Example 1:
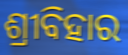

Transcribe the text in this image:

ଶ୍ରୀବିହାର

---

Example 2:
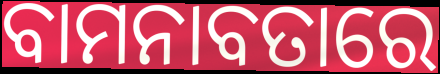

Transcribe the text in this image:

ବାମନାବତାରେ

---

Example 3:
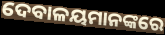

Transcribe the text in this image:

ଦେବାଳୟମାନଙ୍କରେ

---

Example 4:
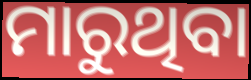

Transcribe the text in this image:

ମାରୁଥିବା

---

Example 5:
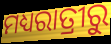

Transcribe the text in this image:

ମଧ୍ୟରାତ୍ରୀରୁ